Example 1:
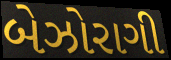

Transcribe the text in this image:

બેઝોરાગી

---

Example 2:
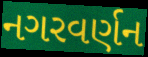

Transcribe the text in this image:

નગરવર્ણન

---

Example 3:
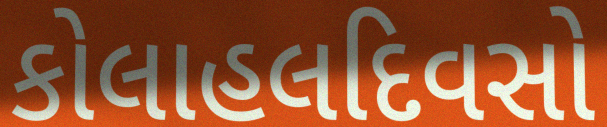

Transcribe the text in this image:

કોલાહલદિવસો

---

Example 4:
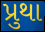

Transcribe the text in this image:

પ્રુથા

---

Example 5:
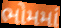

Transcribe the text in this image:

ભોમમાં